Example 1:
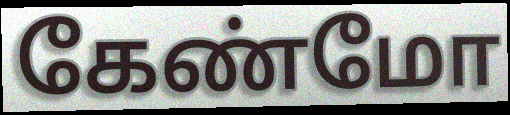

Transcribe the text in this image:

கேண்மோ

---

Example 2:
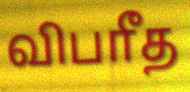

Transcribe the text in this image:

விபரீத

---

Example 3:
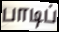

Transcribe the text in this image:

பாடிப்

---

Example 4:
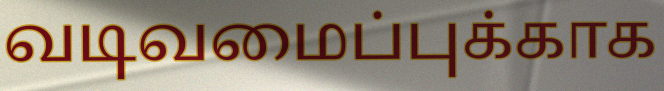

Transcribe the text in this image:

வடிவமைப்புக்காக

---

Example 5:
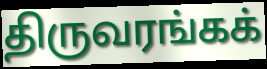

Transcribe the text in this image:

திருவரங்கக்